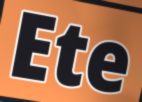
Ete